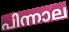
പിന്നാല